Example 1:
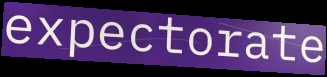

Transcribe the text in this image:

expectorate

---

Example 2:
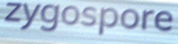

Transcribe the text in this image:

zygospore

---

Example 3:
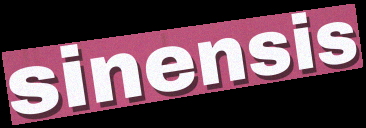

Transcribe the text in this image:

sinensis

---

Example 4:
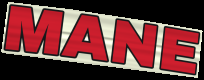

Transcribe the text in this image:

MANE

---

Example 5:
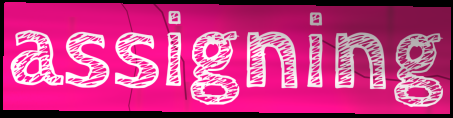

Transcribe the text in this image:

assigning